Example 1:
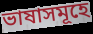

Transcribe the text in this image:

ভাষাসমূহে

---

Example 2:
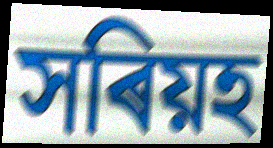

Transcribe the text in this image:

সৰিয়হ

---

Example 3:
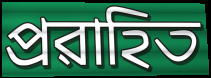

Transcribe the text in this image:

প্ৰৱাহিত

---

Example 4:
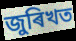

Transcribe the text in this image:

জুৰিখত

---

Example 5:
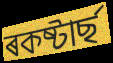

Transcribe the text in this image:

ৰকষ্টাৰ্ছ